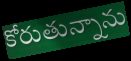
కోరుతున్నాను